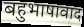
बहुभाषावाद